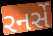
રનર્સે